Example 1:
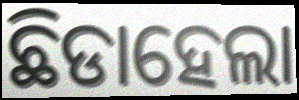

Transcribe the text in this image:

ଛିଡାହେଲା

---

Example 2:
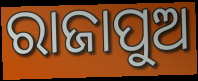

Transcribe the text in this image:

ରାଜାପୁଅ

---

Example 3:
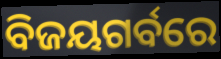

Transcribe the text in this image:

ବିଜୟଗର୍ବରେ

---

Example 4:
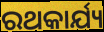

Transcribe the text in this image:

ରଥକାର୍ଯ୍ୟ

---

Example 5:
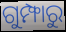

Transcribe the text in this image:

ଗୁମ୍ଫାରୁ